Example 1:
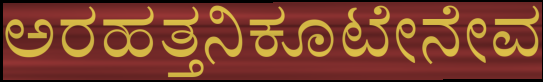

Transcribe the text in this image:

ಅರಹತ್ತನಿಕೂಟೇನೇವ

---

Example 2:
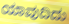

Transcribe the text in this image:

ಯಾವುದಿದು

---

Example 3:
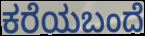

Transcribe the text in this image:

ಕರೆಯಬಂದೆ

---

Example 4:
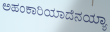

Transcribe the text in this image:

ಅಹಂಕಾರಿಯಾದೆನಯ್ಯಾ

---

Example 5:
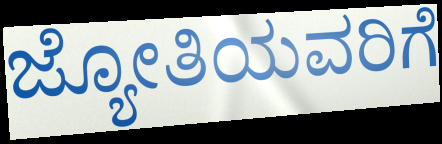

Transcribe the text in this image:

ಜ್ಯೋತಿಯವರಿಗೆ